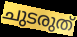
ചുടരുത്